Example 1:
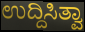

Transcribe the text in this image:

ಉದ್ದಿಸಿತ್ವಾ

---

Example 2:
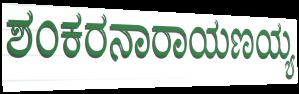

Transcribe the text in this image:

ಶಂಕರನಾರಾಯಣಯ್ಯ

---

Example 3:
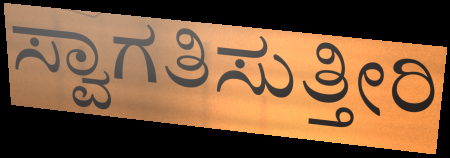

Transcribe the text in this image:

ಸ್ವಾಗತಿಸುತ್ತೀರಿ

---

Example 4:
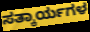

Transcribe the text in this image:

ಸತ್ಕಾರ್ಯಗಳ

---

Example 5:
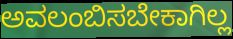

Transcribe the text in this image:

ಅವಲಂಬಿಸಬೇಕಾಗಿಲ್ಲ